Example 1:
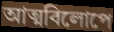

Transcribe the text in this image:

আত্মবিলোপে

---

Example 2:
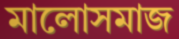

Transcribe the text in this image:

মালোসমাজ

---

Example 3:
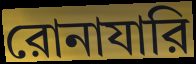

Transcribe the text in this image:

রোনাযারি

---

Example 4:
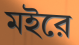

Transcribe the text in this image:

মইরে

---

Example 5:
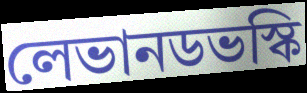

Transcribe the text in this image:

লেভানডভস্কি